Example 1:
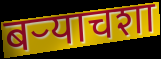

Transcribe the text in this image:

बऱ्याचशा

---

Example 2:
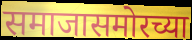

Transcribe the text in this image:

समाजासमोरच्या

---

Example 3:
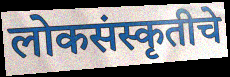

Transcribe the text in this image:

लोकसंस्कृतीचे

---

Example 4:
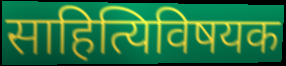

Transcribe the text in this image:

साहित्यिविषयक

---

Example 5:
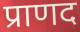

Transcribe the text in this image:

प्राणद